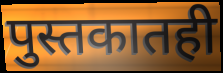
पुस्तकातही